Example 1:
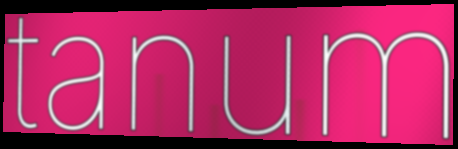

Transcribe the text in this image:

tanum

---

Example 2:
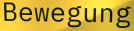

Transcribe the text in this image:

Bewegung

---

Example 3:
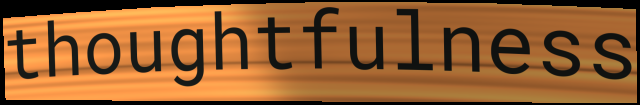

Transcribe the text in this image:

thoughtfulness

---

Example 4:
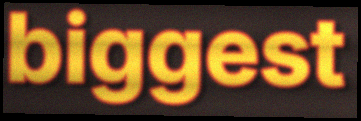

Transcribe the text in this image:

biggest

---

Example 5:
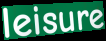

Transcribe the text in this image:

leisure